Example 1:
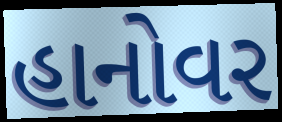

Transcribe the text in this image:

હાનોવર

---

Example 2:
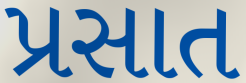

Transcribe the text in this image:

પ્રસાત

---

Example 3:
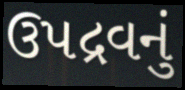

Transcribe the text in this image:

ઉપદ્રવનું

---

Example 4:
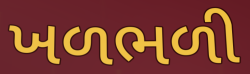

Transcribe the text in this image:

ખળભળી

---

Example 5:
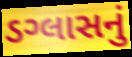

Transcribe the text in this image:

ડગ્લાસનું